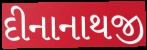
દીનાનાથજી